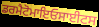
ਡਰਮੈਟੋਮਾਇਓਸਾਈਟਸ